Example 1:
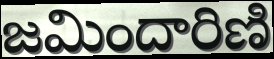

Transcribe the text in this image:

జమిందారిణి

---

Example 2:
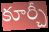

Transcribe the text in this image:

కూర్చీ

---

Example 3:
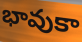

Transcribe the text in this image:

భావుకా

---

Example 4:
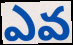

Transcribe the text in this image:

ఎవ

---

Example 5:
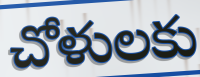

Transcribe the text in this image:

చోళులకు